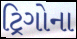
ટ્રિગોના